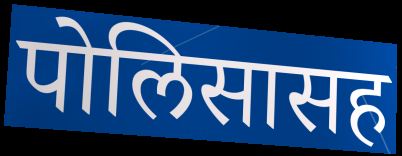
पोलिसासह